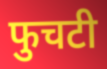
फुचटी